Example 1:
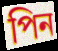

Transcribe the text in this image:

পিন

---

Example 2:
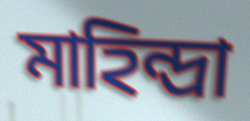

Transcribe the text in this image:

মাহিন্দ্রা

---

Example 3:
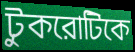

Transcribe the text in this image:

টুকরোটিকে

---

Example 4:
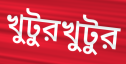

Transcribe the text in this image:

খুটুরখুটুর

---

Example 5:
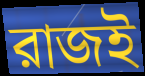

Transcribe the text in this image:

রাজই